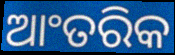
ଆଂତରିକ